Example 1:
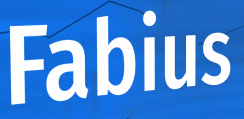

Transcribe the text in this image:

Fabius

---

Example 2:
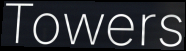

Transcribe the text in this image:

Towers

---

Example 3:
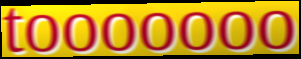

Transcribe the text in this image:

tooooooo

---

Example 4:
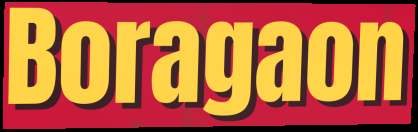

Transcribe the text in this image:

Boragaon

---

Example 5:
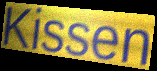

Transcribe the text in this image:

Kissen